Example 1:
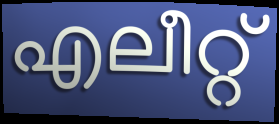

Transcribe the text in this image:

എലീറ്റ്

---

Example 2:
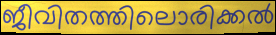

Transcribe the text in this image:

ജീവിതത്തിലൊരിക്കൽ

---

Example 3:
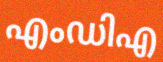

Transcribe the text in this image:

എംഡിഎ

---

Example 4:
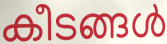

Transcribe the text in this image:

കീടങ്ങൾ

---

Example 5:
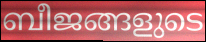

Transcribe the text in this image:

ബീജങ്ങളുടെ